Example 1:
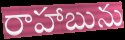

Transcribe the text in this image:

రాహాబును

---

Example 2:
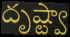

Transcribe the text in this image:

దృష్ట్వా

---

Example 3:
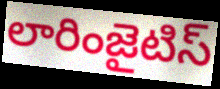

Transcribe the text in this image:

లారింజైటిస్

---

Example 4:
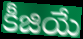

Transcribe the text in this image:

కీజియే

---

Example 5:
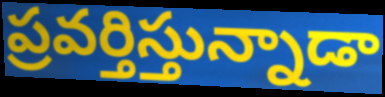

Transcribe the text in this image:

ప్రవర్తిస్తున్నాడా